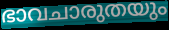
ഭാവചാരുതയും